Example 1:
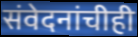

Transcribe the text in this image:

संवेदनांचीही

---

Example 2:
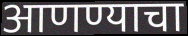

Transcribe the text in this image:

आणण्याचा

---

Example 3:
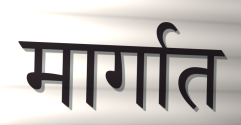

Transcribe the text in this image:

मार्गात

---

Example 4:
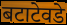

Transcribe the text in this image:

बटाटेवडे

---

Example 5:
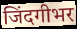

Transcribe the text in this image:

जिंदगीभर